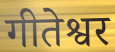
गीतेश्वर